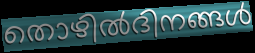
തൊഴിൽദിനങ്ങൾ